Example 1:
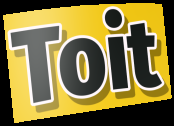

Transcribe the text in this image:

Toit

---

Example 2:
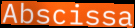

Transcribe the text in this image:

Abscissa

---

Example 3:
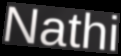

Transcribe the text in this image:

Nathi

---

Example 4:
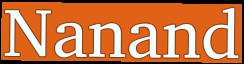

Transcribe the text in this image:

Nanand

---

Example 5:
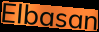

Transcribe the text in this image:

Elbasan